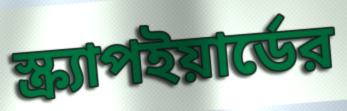
স্ক্র্যাপইয়ার্ডের